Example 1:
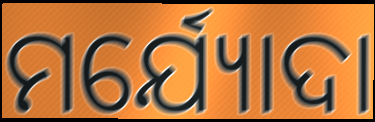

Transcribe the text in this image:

ମର୍ଯ୍ୟୋଦା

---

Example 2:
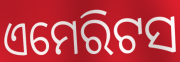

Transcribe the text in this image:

ଏମେରିଟସ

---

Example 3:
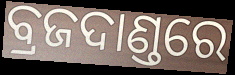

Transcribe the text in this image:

ବ୍ରଜଦାଣ୍ଡରେ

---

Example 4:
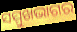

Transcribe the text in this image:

ସମ୍ମୁଖଭାଗର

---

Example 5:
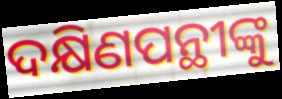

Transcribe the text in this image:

ଦକ୍ଷିଣପନ୍ଥୀଙ୍କୁ